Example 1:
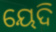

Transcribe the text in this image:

ୟେଦି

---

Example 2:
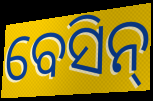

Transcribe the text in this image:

ବେସିନ୍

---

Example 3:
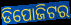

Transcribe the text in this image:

ଡିପୋଜିଟର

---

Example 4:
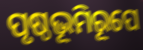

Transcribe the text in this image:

ପୃଷ୍ଠଭୂମିରୂପେ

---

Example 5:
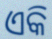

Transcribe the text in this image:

ଏକି